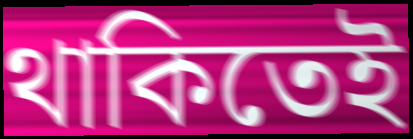
থাকিতেই